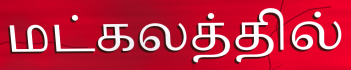
மட்கலத்தில்